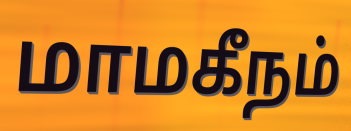
மாமகீநம்